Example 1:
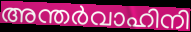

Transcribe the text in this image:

അന്തർവാഹിനി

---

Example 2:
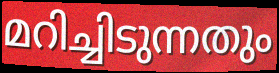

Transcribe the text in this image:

മറിച്ചിടുന്നതും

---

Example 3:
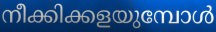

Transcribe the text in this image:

നീക്കിക്കളയുമ്പോൾ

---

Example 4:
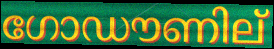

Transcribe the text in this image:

ഗോഡൗണില്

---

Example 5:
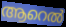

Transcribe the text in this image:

ആറെൽ